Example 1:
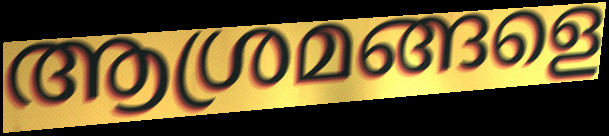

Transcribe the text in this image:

ആശ്രമങ്ങളെ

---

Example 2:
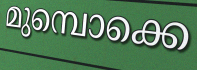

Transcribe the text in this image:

മുമ്പൊക്കെ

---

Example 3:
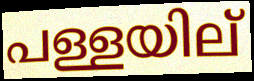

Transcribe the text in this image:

പള്ളയില്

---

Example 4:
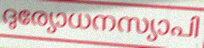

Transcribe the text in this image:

ദുര്യോധനസ്യാപി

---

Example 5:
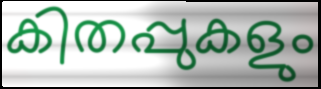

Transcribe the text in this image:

കിതപ്പുകളും